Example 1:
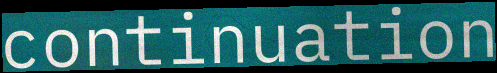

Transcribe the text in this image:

continuation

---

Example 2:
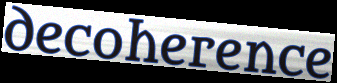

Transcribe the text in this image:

decoherence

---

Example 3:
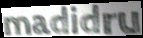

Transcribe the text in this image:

madidru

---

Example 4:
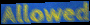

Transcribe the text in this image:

Allowed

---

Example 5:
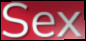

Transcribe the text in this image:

Sex